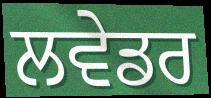
ਲਵੇਡਰ